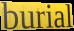
burial